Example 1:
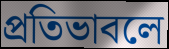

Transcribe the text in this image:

প্রতিভাবলে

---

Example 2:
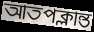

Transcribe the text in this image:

আতপক্লান্ত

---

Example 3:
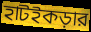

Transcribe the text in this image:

হাটইকড়ার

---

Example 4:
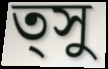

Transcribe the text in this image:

ত্সু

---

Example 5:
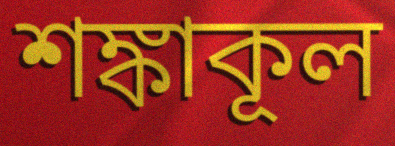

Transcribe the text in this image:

শঙ্কাকূল